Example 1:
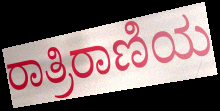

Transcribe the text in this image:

ರಾತ್ರಿರಾಣಿಯ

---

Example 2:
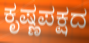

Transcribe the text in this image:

ಕೃಷ್ಣಪಕ್ಷದ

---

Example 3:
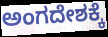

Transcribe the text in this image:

ಅಂಗದೇಶಕ್ಕೆ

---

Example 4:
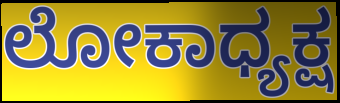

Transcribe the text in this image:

ಲೋಕಾಧ್ಯಕ್ಷ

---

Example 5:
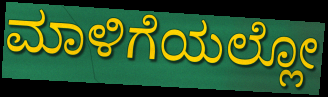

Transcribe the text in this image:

ಮಾಳಿಗೆಯಲ್ಲೋ